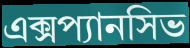
এক্সপ্যানসিভ